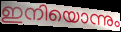
ഇനിയൊന്നും